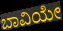
ಬಾವಿಯೇ